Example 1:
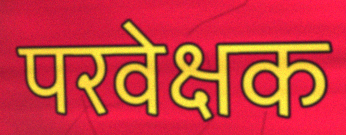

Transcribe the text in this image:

परवेक्षक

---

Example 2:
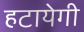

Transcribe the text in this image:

हटायेगी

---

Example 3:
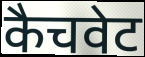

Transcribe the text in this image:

कैचवेट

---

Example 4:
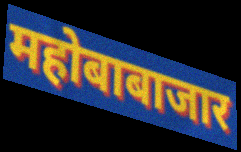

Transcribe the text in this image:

महोबाबाजार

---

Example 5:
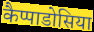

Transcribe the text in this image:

कैप्पाडोसिया